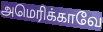
அமெரிக்காவே